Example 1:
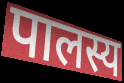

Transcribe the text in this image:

पालस्य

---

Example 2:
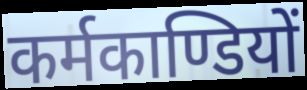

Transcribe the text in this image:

कर्मकाण्डियों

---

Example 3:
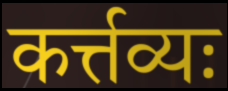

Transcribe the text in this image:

कर्त्तव्यः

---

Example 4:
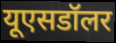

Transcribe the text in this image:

यूएसडॉलर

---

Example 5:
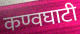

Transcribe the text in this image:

कण्वघाटी